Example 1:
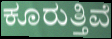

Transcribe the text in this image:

ಕೂರುತ್ತಿವೆ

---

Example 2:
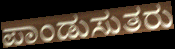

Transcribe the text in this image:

ಪಾಂಡುಸುತರು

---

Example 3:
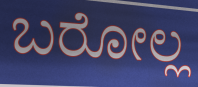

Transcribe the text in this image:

ಬರೋಲ್ಲ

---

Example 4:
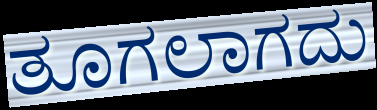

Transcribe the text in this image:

ತೂಗಲಾಗದು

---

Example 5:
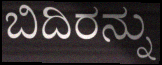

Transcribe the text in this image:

ಬಿದಿರನ್ನು